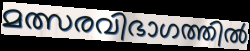
മത്സരവിഭാഗത്തിൽ